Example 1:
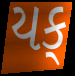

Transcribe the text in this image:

યક્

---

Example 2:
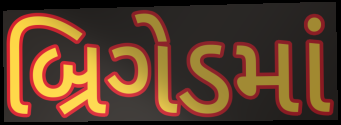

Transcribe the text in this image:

બ્રિગેડમાં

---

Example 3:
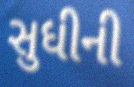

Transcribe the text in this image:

સુધીની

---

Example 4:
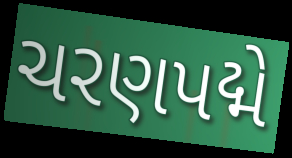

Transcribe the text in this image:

ચરણપદ્મે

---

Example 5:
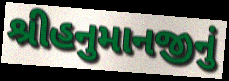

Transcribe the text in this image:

શ્રીહનુમાનજીનું